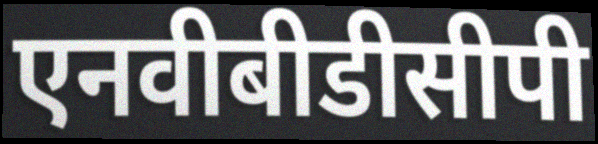
एनवीबीडीसीपी